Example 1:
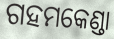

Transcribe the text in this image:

ଗହମକେଣ୍ଡା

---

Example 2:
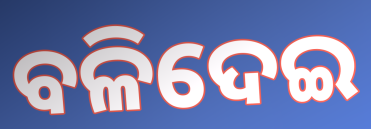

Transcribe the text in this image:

ବଳିଦେଇ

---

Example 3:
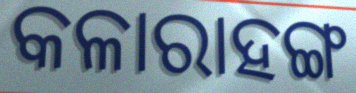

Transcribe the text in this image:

କଳାରାହଙ୍ଗ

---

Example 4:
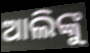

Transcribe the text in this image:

ଆଲିଙ୍କୁ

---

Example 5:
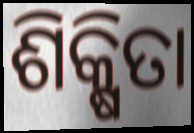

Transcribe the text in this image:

ଶିକ୍ଷିତା